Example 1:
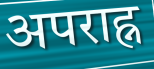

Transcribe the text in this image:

अपराह्न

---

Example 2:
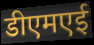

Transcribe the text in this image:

डीएमएई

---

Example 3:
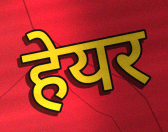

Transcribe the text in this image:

हेयर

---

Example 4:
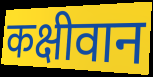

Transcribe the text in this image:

कक्षीवान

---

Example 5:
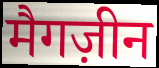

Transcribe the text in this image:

मैगज़ीन